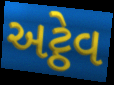
અટ્ઠેવ